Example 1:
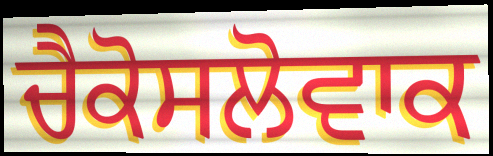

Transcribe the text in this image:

ਚੈਕੋਸਲੋਵਾਕ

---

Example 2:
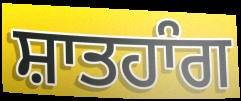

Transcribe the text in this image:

ਸ਼ਾਤਹਾੰਗ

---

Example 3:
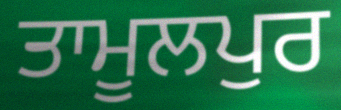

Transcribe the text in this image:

ਤਾਮੂਲਪੁਰ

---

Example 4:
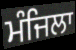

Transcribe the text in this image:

ਮੰਜਿਲਾ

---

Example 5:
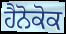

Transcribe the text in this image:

ਹੈਨੋਕੋਕ